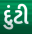
દુંટી